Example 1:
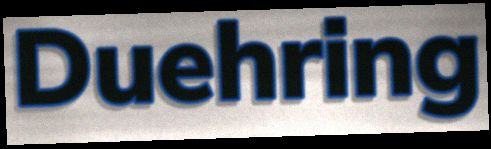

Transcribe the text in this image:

Duehring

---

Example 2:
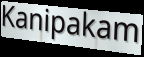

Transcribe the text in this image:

Kanipakam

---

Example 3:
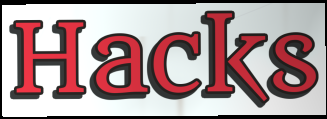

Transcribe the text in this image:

Hacks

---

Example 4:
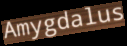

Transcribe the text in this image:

Amygdalus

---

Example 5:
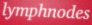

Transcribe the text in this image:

lymphnodes